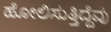
ಹೋಲಿಸುತ್ತಿದ್ದೆವು